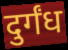
दुर्गंध